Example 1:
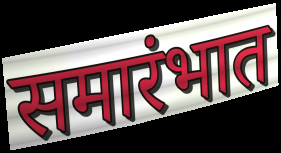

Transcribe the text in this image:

समारंभात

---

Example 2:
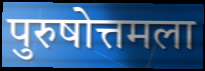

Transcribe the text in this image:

पुरुषोत्तमला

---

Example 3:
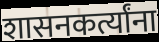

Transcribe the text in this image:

शासनकर्त्यांना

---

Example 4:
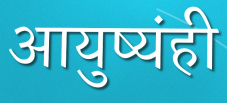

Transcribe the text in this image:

आयुष्यंही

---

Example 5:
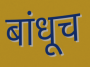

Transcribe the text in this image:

बांधूच